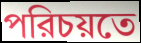
পরিচয়তে